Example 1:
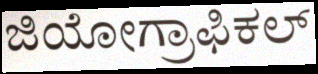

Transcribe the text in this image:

ಜಿಯೋಗ್ರಾಫಿಕಲ್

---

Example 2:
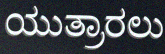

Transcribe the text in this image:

ಯುತ್ರಾರಲು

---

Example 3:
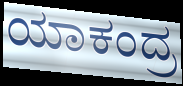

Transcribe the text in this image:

ಯಾಕಂದ್ರ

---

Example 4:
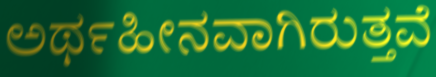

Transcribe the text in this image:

ಅರ್ಥಹೀನವಾಗಿರುತ್ತವೆ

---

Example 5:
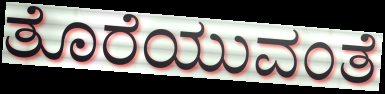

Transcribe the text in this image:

ತೊರೆಯುವಂತೆ